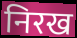
निरख